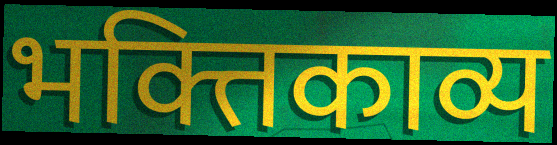
भक्तिकाव्य